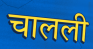
चालली